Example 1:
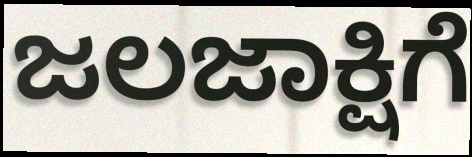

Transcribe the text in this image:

ಜಲಜಾಕ್ಷಿಗೆ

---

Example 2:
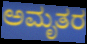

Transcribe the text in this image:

ಅಮೃತರ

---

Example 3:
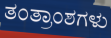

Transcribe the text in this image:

ತಂತ್ರಾಂಶಗಳು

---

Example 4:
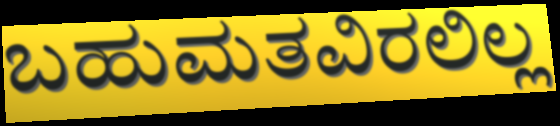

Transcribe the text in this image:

ಬಹುಮತವಿರಲಿಲ್ಲ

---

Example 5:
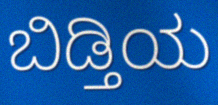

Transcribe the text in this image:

ಬಿಡ್ತಿಯ